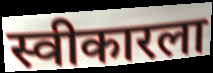
स्वीकारला